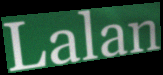
Lalan